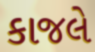
કાજલે